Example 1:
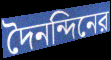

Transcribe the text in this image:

দৈনন্দিনের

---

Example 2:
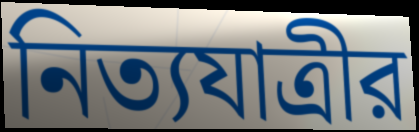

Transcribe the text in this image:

নিত্যযাত্রীর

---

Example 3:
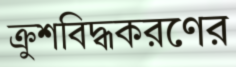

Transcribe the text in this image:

ক্রুশবিদ্ধকরণের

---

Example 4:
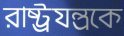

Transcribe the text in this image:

রাষ্ট্রযন্ত্রকে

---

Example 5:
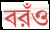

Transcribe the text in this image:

বরঁও